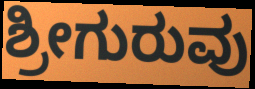
ಶ್ರೀಗುರುವು